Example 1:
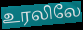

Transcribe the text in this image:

உரலிலே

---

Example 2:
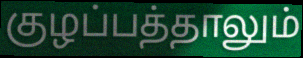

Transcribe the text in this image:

குழப்பத்தாலும்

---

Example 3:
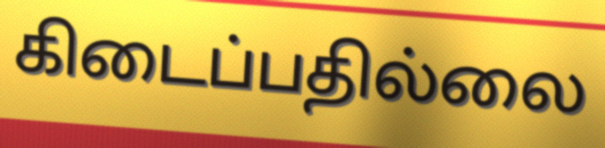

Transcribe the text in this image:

கிடைப்பதில்லை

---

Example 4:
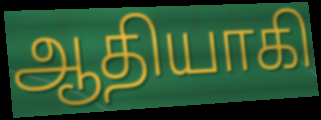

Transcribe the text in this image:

ஆதியாகி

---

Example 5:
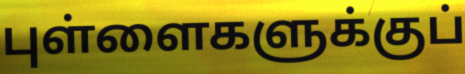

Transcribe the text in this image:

புள்ளைகளுக்குப்